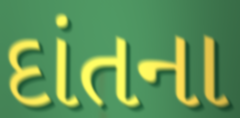
દાંતના